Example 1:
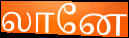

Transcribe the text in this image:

லானே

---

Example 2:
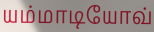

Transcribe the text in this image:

யம்மாடியோவ்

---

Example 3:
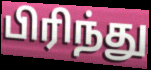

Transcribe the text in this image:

பிரிந்து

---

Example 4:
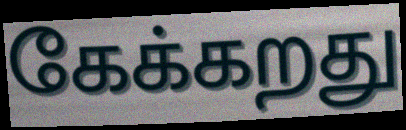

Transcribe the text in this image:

கேக்கறது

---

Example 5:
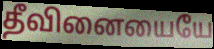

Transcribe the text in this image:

தீவினையையே